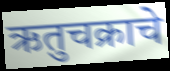
ऋतुचक्राचे